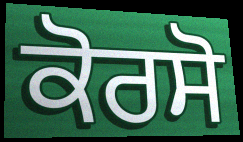
ਕੋਰਸੋ